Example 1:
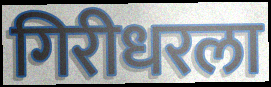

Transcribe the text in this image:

गिरीधरला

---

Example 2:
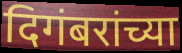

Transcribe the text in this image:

दिगंबरांच्या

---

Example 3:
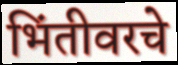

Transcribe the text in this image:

भिंतीवरचे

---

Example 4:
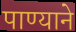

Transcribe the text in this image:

पाण्याने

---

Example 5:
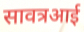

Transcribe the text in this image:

सावत्रआई